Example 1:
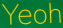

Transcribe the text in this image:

Yeoh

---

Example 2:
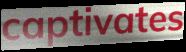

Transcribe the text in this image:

captivates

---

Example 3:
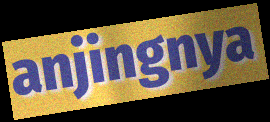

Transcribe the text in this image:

anjingnya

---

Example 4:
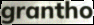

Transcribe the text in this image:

grantho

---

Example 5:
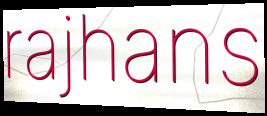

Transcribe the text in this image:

rajhans